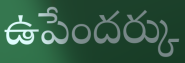
ఉపేందర్కు